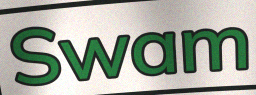
Swam